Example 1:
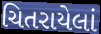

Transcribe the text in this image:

ચિતરાયેલાં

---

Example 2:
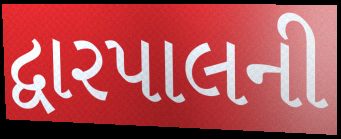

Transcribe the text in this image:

દ્વારપાલની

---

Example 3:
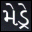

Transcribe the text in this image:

મેડ્રે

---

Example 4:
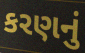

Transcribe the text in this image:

કરણનું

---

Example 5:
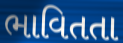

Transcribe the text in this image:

ભાવિતતા